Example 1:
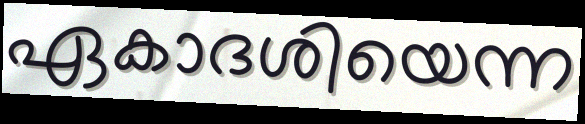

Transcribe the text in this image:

ഏകാദശിയെന്ന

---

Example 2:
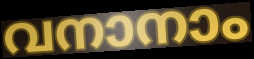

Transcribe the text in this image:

വനാനാം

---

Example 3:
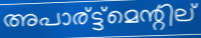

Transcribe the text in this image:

അപാര്ട്ട്മെന്റില്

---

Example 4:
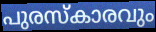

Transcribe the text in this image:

പുരസ്കാരവും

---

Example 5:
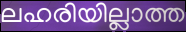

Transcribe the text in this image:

ലഹരിയില്ലാത്ത